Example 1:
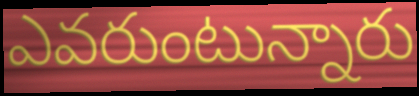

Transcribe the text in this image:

ఎవరుంటున్నారు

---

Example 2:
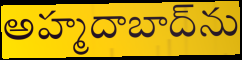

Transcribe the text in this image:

అహ్మదాబాద్‌ను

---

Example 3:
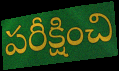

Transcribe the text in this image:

పరీక్షించి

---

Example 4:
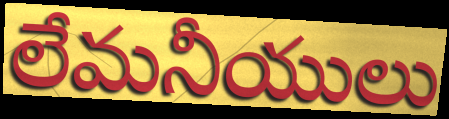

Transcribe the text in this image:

లేమనీయులు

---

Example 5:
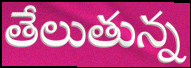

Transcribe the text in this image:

తేలుతున్న